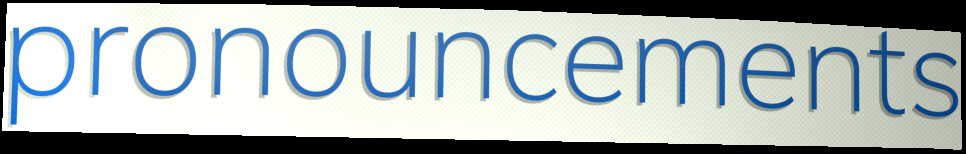
pronouncements